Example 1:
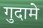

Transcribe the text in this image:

गुदामे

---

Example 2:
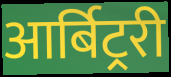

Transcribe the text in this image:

आर्बिट्ररी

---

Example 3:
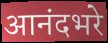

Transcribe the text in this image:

आनंदभरे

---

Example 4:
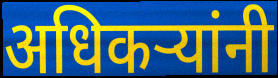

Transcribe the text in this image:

अधिकऱ्यांनी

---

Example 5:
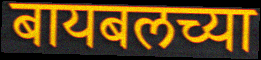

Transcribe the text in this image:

बायबलच्या